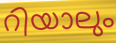
റിയാലും